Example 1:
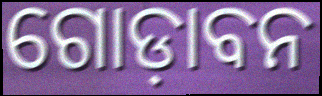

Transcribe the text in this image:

ଗୋଡ଼ାବନ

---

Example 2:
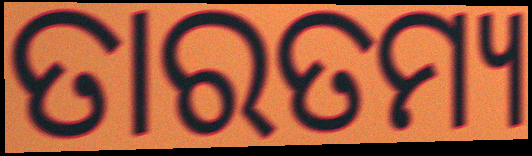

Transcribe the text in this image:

ତାରତମ୍ୟ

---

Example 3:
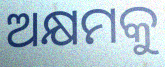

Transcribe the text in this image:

ଅକ୍ଷମକୁ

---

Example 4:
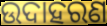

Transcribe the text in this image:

ଉଦାହରଣ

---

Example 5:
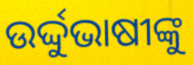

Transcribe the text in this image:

ଉର୍ଦ୍ଦୁଭାଷୀଙ୍କୁ